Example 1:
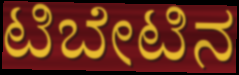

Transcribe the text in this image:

ಟಿಬೇಟಿನ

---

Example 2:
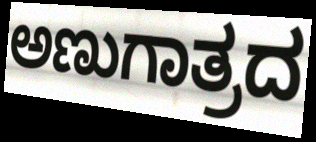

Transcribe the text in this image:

ಅಣುಗಾತ್ರದ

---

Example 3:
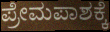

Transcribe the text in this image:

ಪ್ರೇಮಪಾಶಕ್ಕೆ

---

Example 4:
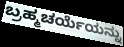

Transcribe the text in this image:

ಬ್ರಹ್ಮಚರ್ಯೆಯನ್ನು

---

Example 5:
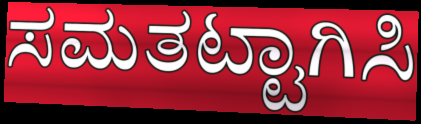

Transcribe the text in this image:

ಸಮತಟ್ಟಾಗಿಸಿ